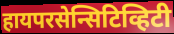
हायपरसेन्सिटिव्हिटी